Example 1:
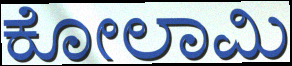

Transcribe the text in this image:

ಕೋಲಾಮಿ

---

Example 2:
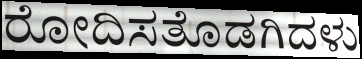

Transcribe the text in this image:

ರೋದಿಸತೊಡಗಿದಳು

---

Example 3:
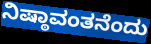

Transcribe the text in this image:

ನಿಷ್ಠಾವಂತನೆಂದು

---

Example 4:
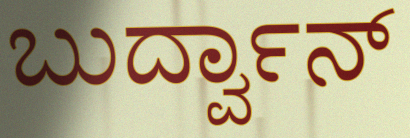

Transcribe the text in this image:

ಬುರ್ದ್ವಾನ್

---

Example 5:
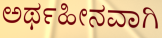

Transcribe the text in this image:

ಅರ್ಥಹೀನವಾಗಿ